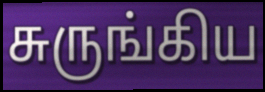
சுருங்கிய